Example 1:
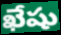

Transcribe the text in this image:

ఖేషు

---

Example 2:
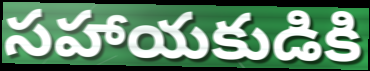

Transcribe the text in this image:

సహాయకుడికి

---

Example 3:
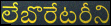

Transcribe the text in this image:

లేబొరేటరీని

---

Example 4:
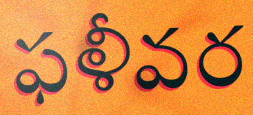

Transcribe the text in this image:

ఫళీవర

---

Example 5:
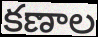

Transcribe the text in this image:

కణాల